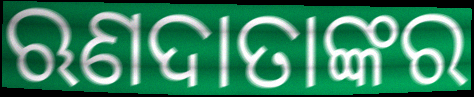
ଋଣଦାତାଙ୍କର